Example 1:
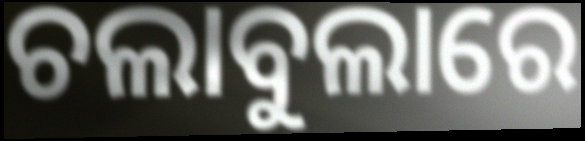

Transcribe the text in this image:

ଚଲାବୁଲାରେ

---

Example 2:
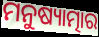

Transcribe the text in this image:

ମନୁଷ୍ୟାତ୍ମାର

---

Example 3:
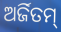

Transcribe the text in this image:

ଅର୍ଜିତମ୍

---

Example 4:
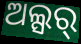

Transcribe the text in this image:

ଅଲ୍ସର୍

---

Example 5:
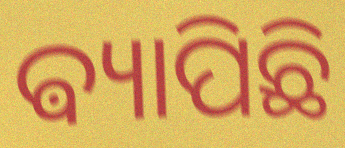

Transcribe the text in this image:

ଵ୍ୟାପିଛି